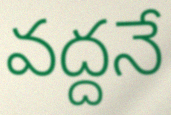
వద్దనే